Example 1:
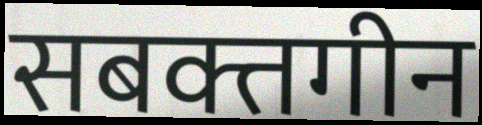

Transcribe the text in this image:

सबक्तगीन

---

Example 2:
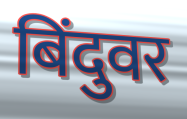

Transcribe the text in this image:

बिंदुवर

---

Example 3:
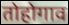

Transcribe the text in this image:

तोहोगाव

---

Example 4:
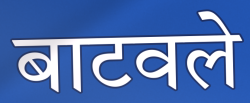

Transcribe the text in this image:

बाटवले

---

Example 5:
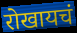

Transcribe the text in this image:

रोखायचं